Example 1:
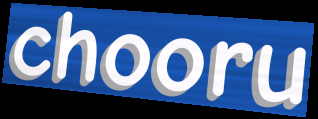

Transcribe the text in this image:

chooru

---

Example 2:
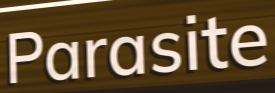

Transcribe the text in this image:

Parasite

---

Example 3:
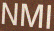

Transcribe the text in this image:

NMI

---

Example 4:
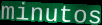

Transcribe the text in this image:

minutos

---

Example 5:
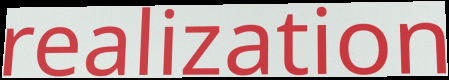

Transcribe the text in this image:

realization